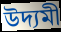
উদ্যমী